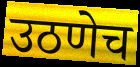
उठणेच